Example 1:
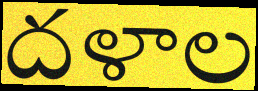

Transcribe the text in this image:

దళాల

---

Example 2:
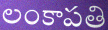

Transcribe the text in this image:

లంకాపతి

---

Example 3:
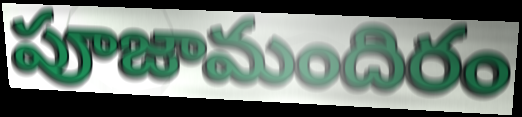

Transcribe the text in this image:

పూజామందిరం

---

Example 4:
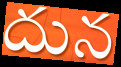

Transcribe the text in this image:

దున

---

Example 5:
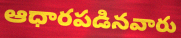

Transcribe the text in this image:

ఆధారపడినవారు